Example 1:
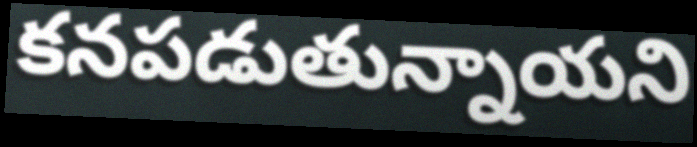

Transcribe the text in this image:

కనపడుతున్నాయని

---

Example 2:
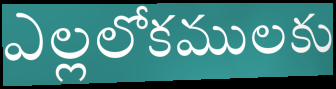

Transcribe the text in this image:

ఎల్లలోకములకు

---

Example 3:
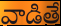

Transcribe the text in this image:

వాడితే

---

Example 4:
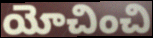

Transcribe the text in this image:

యోచించి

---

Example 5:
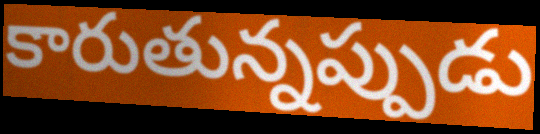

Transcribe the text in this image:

కారుతున్నప్పుడు